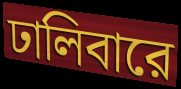
ঢালিবারে